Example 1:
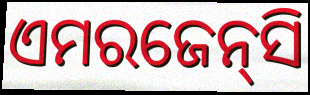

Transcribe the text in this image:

ଏମରଜେନ୍‌ସି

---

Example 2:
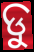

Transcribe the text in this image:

ଡୁ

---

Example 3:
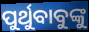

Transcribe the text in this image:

ପୁର୍ଥୁବାବୁଙ୍କୁ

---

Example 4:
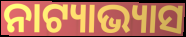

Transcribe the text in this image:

ନାଟ୍ୟାଭ୍ୟାସ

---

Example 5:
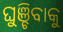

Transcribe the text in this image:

ଘୁଞ୍ଚିବାକୁ